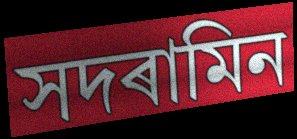
সদৰামিন